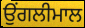
ਉਂਗਲੀਮਾਲ